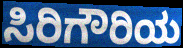
ಸಿರಿಗೌರಿಯ